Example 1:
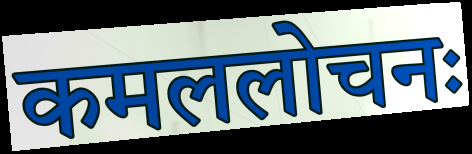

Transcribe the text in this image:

कमललोचनः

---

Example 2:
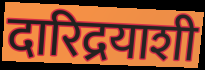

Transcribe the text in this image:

दारिद्रयाशी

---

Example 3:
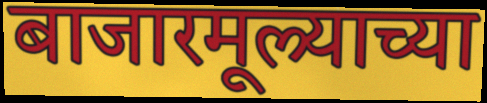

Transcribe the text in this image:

बाजारमूल्याच्या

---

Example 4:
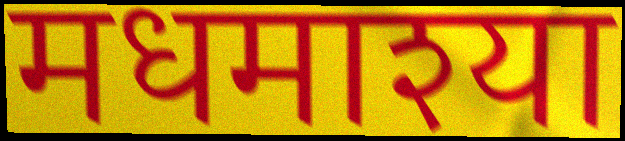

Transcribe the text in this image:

मधमाश्या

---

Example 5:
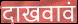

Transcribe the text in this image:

दाखवावं